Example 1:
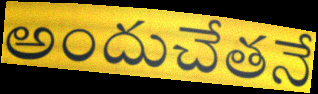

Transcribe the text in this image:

అందుచేతనే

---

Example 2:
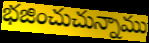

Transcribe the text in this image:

భజించుచున్నాము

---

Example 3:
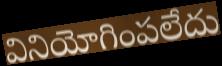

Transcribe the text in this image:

వినియోగింపలేదు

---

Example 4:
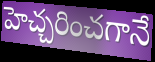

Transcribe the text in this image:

హెచ్చరించగానే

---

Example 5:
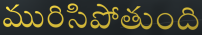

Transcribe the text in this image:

మురిసిపోతుంది